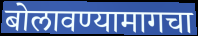
बोलावण्यामागचा